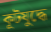
কূটযুদ্ধে